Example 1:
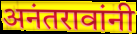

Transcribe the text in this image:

अनंतरावांनी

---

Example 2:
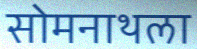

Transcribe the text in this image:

सोमनाथला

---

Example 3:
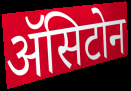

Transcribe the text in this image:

ॲसिटोन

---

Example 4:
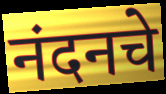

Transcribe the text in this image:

नंदनचे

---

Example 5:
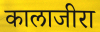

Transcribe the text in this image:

कालाजीरा